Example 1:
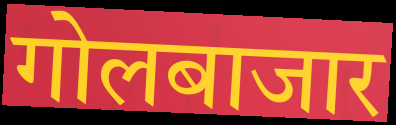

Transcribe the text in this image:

गोलबाजार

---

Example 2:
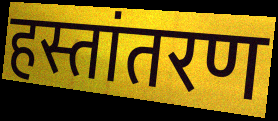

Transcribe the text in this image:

हस्तांतरण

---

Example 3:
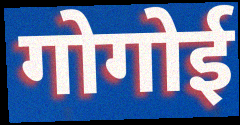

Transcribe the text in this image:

गोगोई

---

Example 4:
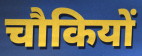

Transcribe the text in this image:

चौकियों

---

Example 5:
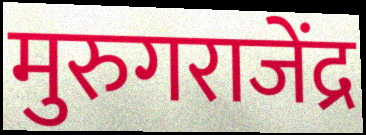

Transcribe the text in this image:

मुरुगराजेंद्र